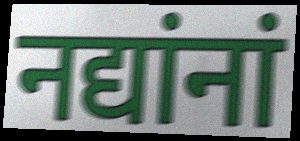
नद्यांनां